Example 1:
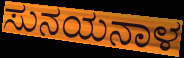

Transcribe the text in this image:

ಸುನಯನಾಳ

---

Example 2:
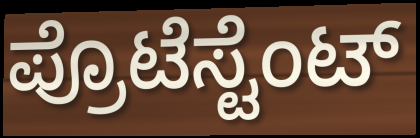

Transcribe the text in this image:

ಪ್ರೊಟೆಸ್ಟೆಂಟ್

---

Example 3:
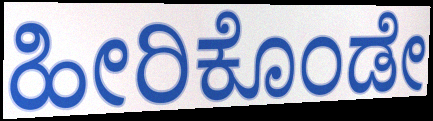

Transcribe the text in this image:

ಹೀರಿಕೊಂಡೇ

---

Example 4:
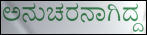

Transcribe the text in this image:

ಅನುಚರನಾಗಿದ್ದ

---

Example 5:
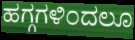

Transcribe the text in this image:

ಹಗ್ಗಗಳಿಂದಲೂ